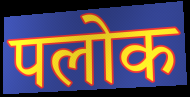
पलोक